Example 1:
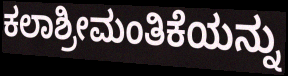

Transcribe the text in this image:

ಕಲಾಶ್ರೀಮಂತಿಕೆಯನ್ನು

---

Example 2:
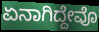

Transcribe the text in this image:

ಏನಾಗಿದ್ದೇವೊ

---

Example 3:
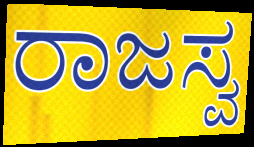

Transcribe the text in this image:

ರಾಜಸ್ವ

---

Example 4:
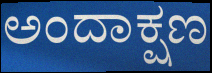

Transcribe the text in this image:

ಅಂದಾಕ್ಷಣ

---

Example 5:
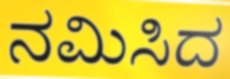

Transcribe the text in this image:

ನಮಿಸಿದ